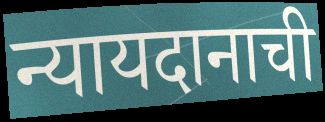
न्यायदानाची